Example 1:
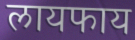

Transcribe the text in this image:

लायफाय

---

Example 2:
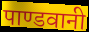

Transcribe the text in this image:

पाण्डवानी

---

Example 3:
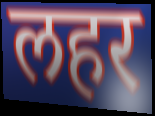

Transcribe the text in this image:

लहर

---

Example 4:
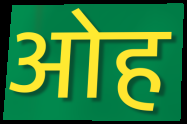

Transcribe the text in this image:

ओह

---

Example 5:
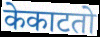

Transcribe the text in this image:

केकाटतो